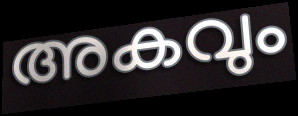
അകവും